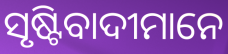
ସୃଷ୍ଟିବାଦୀମାନେ